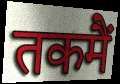
तकमैं